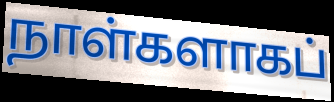
நாள்களாகப்